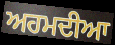
ਅਹਮਦੀਆ